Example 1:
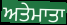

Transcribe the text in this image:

ਅਤੇਮਾਤਾ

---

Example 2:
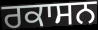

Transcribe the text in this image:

ਰਕਾਸਨ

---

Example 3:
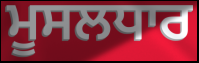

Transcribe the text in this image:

ਮੂਸਲਧਾਰ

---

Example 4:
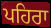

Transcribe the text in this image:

ਪਹਿਰਾ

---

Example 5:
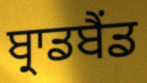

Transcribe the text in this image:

ਬ੍ਰਾਡਬੈਂਡ